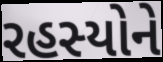
રહસ્યોને